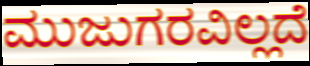
ಮುಜುಗರವಿಲ್ಲದೆ